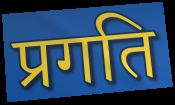
प्रगति